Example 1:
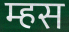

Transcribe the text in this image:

म्हस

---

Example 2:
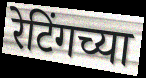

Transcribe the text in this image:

रेटिंगच्या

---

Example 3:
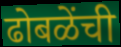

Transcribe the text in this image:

ढोबळेंची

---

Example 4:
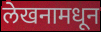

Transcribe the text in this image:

लेखनामधून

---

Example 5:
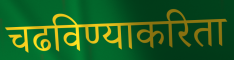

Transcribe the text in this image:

चढविण्याकरिता